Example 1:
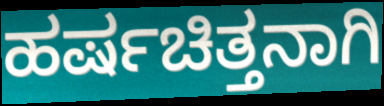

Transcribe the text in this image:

ಹರ್ಷಚಿತ್ತನಾಗಿ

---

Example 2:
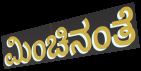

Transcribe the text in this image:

ಮಿಂಚಿನಂತೆ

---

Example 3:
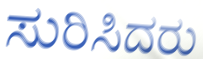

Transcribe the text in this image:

ಸುರಿಸಿದರು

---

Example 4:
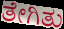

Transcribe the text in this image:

ತೇಗಿತು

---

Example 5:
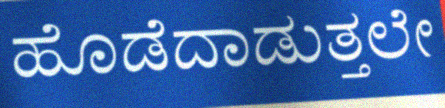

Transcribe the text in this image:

ಹೊಡೆದಾಡುತ್ತಲೇ